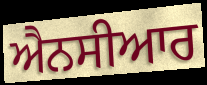
ਐਨਸੀਆਰ